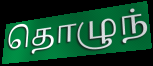
தொழுந்